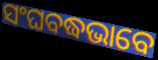
ସଂଘବଦ୍ଧଭାବେ